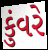
કુંવરે